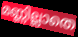
മണ്ണില്ലാതെ